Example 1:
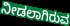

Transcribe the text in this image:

ನೀಡಲಾಗಿರುವ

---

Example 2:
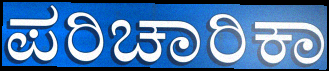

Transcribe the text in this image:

ಪರಿಚಾರಿಕಾ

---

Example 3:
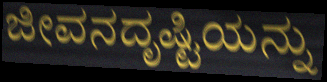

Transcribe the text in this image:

ಜೀವನದೃಷ್ಟಿಯನ್ನು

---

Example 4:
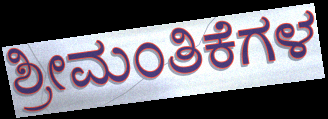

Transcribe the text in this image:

ಶ್ರೀಮಂತಿಕೆಗಳ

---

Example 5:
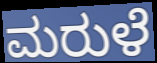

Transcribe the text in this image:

ಮರುಳೆ